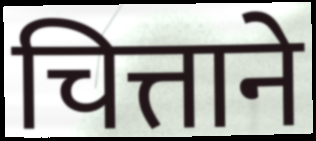
चित्ताने